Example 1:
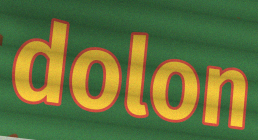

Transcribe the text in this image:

dolon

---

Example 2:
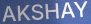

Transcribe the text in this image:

AKSHAY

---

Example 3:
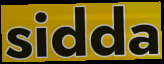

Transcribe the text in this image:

sidda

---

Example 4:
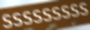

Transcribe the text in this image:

sssssssss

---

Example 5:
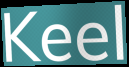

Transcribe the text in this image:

Keel